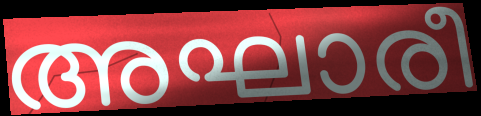
അഘാരീ